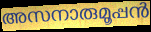
അസനാരുമൂപ്പൻ